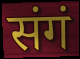
संगं